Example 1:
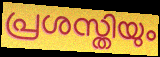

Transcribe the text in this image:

പ്രശസ്തിയും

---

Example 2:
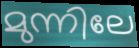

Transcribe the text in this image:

മുന്നിലേ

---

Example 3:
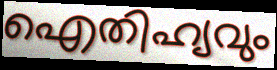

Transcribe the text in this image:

ഐതിഹ്യവും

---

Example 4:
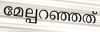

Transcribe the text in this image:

മേല്പറഞ്ഞത്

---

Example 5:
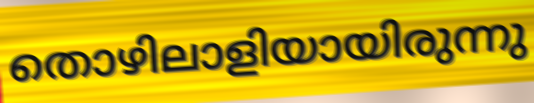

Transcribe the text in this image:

തൊഴിലാളിയായിരുന്നു